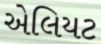
એલિયટ